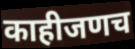
काहीजणच